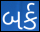
બર્ક